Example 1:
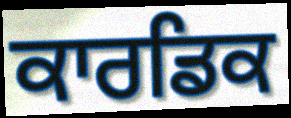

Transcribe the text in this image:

ਕਾਰਡਿਕ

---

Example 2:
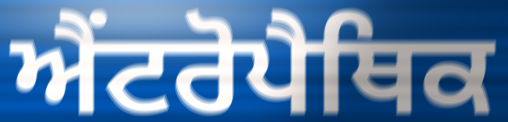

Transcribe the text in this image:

ਐਂਟਰੋਪੈਥਿਕ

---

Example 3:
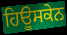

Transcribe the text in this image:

ਹਿਊਸਕੇਨ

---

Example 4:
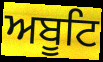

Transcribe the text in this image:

ਅਬੂਟਿ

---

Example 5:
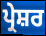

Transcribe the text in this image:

ਪ੍ਰੇਸ਼ਰ